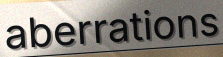
aberrations